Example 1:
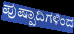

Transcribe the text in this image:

ಪುಷ್ಪಾದಿಗಳಿಂದ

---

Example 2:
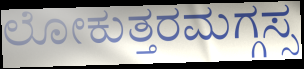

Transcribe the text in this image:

ಲೋಕುತ್ತರಮಗ್ಗಸ್ಸ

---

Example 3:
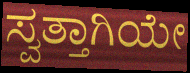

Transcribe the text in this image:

ಸ್ವತ್ತಾಗಿಯೇ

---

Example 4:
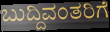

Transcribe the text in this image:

ಬುದ್ದಿವಂತರಿಗೆ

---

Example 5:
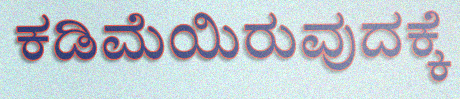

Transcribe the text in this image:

ಕಡಿಮೆಯಿರುವುದಕ್ಕೆ